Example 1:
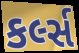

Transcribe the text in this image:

કર્લ્સ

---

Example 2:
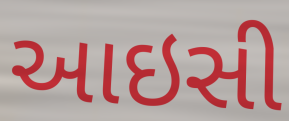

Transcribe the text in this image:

આઇસી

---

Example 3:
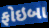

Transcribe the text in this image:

ફોઇબા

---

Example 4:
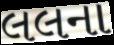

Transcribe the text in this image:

લલના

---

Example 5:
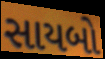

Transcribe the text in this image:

સાયબો